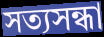
সত্যসন্ধা